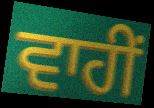
ਵਾਹੀਂ